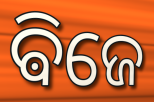
ଵିଜେ